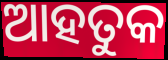
ଆହତୁକ